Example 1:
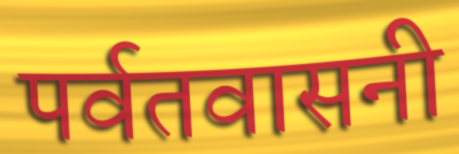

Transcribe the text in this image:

पर्वतवासनी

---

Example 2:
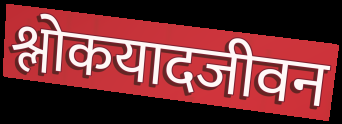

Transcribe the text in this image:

श्लोकयादजीवन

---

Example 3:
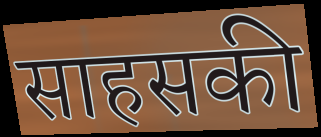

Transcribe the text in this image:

साहसकी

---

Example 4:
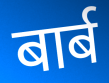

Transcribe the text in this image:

बार्ब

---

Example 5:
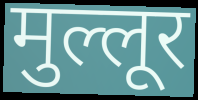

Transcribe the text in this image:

मुल्लूर